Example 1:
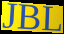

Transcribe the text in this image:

JBL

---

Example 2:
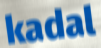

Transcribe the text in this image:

kadal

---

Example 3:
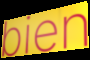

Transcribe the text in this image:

bien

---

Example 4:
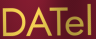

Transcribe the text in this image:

DATel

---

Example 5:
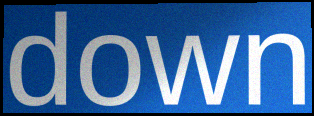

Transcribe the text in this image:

down